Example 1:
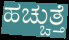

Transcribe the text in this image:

ಹಚ್ಚುತ್ತೆ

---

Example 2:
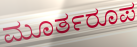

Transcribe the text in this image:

ಮೂರ್ತರೂಪ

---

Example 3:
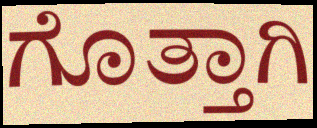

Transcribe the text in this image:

ಗೊತ್ತಾಗಿ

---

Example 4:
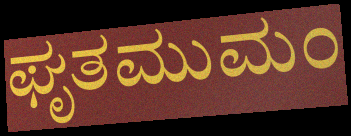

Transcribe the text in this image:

ಘೃತಮುಮಂ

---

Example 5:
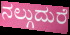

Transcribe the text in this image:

ನಲ್ಗುದುರೆ